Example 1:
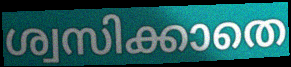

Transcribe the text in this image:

ശ്വസിക്കാതെ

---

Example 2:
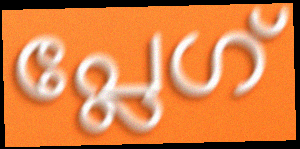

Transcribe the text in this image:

പ്ലേഗ്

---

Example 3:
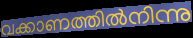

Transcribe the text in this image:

വക്കാണത്തിൽനിന്നു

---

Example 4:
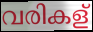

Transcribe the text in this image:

വരികള്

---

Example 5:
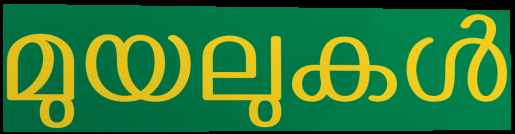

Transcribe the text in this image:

മുയലുകൾ